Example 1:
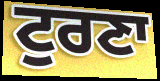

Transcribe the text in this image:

ਟੁਰਣਾ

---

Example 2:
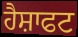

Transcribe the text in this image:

ਹੈਸ਼ਾਫਟ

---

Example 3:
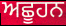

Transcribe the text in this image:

ਅਛੂਹਨ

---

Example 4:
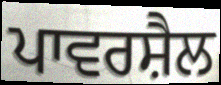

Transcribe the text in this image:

ਪਾਵਰਸ਼ੈਲ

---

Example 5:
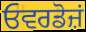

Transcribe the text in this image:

ਓਵਰਡੋਜ਼ਂ